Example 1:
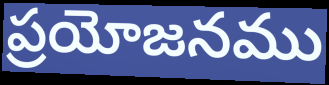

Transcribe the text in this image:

ప్రయోజనము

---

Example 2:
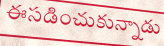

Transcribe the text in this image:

ఈసడించుకున్నాడు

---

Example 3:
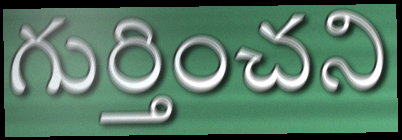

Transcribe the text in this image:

గుర్తించని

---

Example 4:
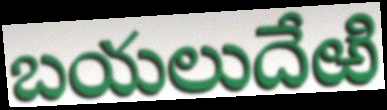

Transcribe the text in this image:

బయలుదేఱి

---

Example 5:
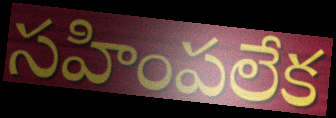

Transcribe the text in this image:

సహింపలేక